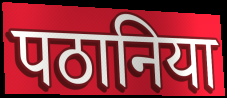
पठानिया